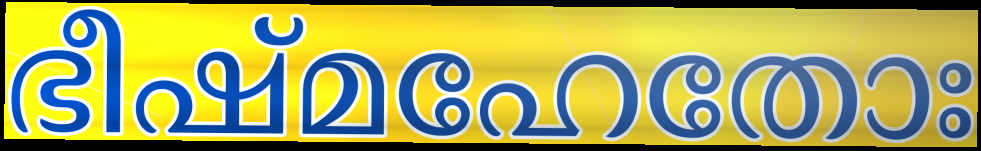
ഭീഷ്മഹേതോഃ